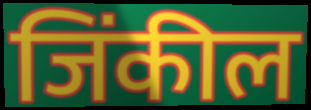
जिंकील